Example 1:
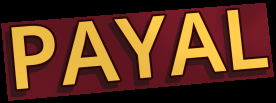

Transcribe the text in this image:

PAYAL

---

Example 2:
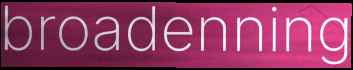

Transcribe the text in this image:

broadenning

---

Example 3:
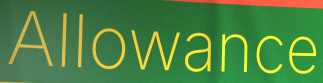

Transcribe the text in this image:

Allowance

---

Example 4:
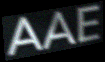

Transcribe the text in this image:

AAE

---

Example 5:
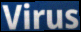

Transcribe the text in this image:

Virus